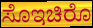
ಸೊಇಚಿರೊ